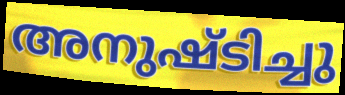
അനുഷ്ടിച്ചു